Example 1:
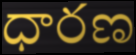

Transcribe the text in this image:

ధారణ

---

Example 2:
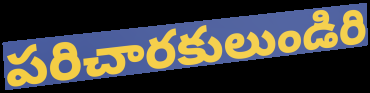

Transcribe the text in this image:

పరిచారకులుండిరి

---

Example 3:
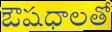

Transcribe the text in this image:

ఔషధాలతో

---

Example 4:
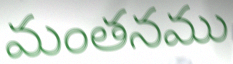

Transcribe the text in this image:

మంతనము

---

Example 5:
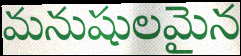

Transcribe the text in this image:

మనుషులమైన